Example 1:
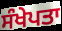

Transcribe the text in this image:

ਸੰਖੇਪਤਾ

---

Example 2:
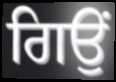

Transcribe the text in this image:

ਗਿਉਂ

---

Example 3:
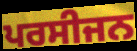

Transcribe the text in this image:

ਪਰਸੀਜਨ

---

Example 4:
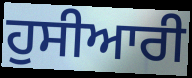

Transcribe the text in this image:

ਹੁਸੀਆਰੀ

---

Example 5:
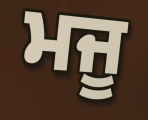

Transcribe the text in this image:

ਮਜੂ